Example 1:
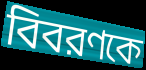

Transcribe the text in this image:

বিবরণকে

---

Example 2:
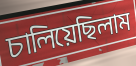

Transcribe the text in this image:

চালিয়েছিলাম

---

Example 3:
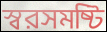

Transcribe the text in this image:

স্বরসমষ্টি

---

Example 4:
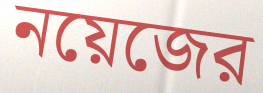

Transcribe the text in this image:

নয়েজের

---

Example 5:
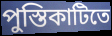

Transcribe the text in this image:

পুস্তিকাটিতে